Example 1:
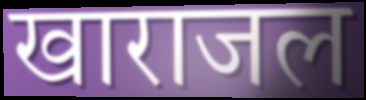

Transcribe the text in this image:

खाराजल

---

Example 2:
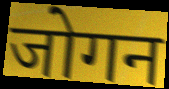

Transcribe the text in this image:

जोगन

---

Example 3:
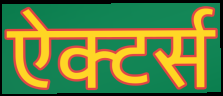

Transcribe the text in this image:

ऐक्टर्स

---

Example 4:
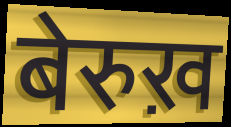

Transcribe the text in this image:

बेरुख़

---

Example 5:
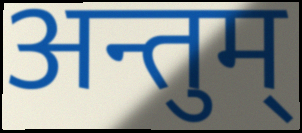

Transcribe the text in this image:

अन्तुम्